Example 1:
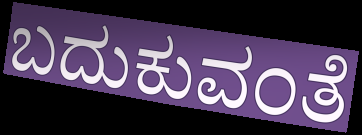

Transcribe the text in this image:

ಬದುಕುವಂತೆ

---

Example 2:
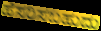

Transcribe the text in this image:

ಹೆಸರಿಸಬಹುದು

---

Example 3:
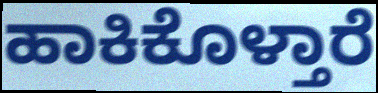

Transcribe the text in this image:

ಹಾಕಿಕೊಳ್ತಾರೆ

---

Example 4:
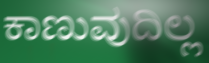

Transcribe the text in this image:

ಕಾಣುವುದಿಲ್ಲ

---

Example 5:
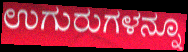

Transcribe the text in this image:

ಉಗುರುಗಳನ್ನೂ